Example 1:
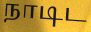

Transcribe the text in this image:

நாடிட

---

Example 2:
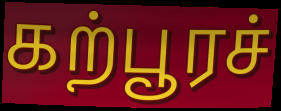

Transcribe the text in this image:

கற்பூரச்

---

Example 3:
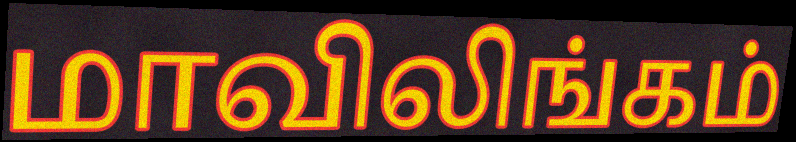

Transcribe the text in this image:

மாவிலிங்கம்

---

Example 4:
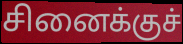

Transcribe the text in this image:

சினைக்குச்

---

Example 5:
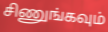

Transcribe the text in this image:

சிணுங்கவும்